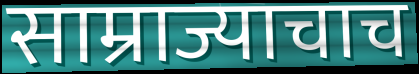
साम्राज्याचाच